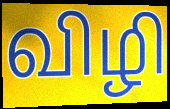
விழி